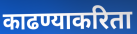
काढण्याकरिता